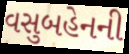
વસુબહેનની